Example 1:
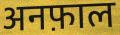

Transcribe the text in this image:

अनफ़ाल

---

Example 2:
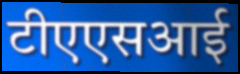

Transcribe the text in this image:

टीएएसआई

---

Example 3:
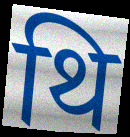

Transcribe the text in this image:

थि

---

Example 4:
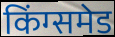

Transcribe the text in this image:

किंग्समेड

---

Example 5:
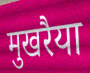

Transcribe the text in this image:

मुखरैया